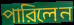
পারিলেন